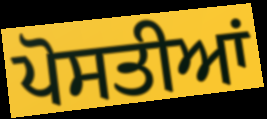
ਪੋਸਤੀਆਂ